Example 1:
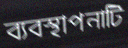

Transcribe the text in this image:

ব্যবস্থাপনাটি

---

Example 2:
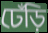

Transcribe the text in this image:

ঢেঁড়ি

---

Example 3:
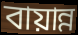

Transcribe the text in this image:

বায়ান্ন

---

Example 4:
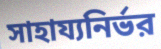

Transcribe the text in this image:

সাহায্যনির্ভর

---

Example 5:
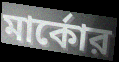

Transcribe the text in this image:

মার্কোর